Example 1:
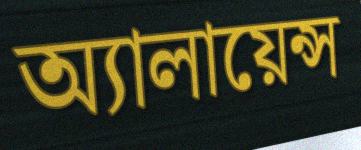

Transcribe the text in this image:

অ্যালায়েন্স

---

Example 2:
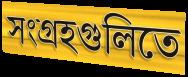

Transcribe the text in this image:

সংগ্রহগুলিতে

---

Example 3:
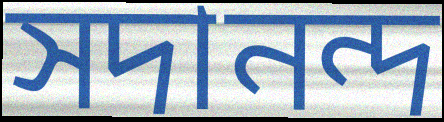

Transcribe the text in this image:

সদানন্দ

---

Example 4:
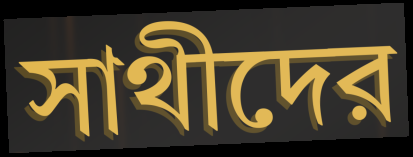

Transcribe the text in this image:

সাথীদের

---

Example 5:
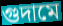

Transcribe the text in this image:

গুদামে